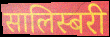
सालिस्बरी